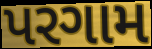
પરગામ